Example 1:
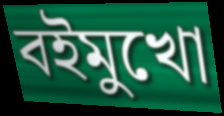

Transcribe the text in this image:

বইমুখো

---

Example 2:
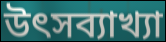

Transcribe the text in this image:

উৎসব্যাখ্যা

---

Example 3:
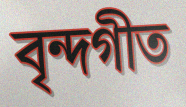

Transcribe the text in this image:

বৃন্দগীত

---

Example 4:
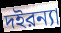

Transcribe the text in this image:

দইরন্যা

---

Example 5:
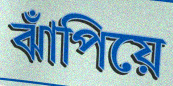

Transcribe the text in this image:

ঝাঁপিয়ে